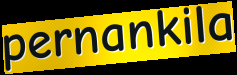
pernankila